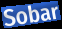
Sobar